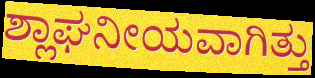
ಶ್ಲಾಘನೀಯವಾಗಿತ್ತು